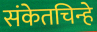
संकेतचिन्हे